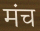
मंच